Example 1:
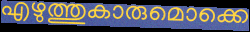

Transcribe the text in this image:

എഴുത്തുകാരുമൊക്കെ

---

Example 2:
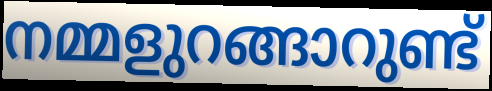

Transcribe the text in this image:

നമ്മളുറങ്ങാറുണ്ട്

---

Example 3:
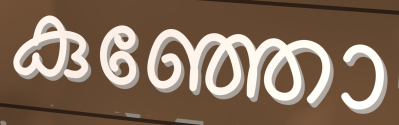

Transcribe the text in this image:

കുഞ്ഞോ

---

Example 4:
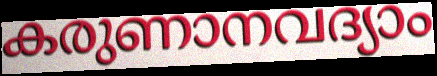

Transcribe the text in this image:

കരുണാനവദ്യാം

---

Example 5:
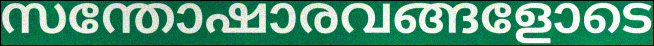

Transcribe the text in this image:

സന്തോഷാരവങ്ങളോടെ